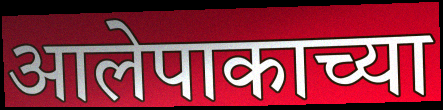
आलेपाकाच्या